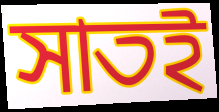
সাতই